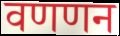
वणणन